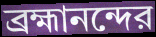
ব্রহ্মানন্দের